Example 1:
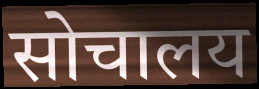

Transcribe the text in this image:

सोचालय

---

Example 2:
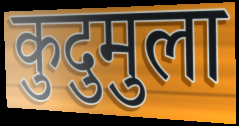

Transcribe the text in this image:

कुदुमुला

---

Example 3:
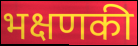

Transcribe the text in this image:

भक्षणकी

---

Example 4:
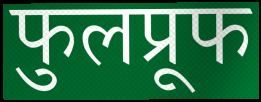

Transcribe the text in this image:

फुलप्रूफ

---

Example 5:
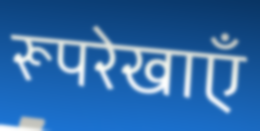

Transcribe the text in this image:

रूपरेखाएँ